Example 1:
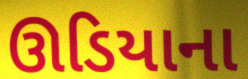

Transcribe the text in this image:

ઊડિયાના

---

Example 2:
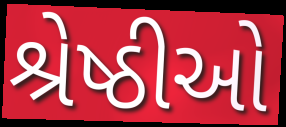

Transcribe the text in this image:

શ્રેષ્ઠીઓ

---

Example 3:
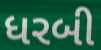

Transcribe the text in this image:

ધરબી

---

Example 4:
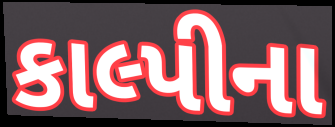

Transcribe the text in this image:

કાલ્પીના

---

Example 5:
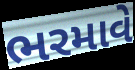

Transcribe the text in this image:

ભરમાવે